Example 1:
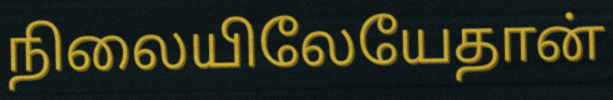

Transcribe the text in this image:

நிலையிலேயேதான்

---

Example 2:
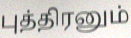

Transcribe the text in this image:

புத்திரனும்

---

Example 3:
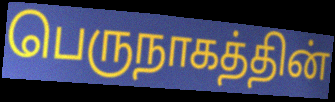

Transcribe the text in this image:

பெருநாகத்தின்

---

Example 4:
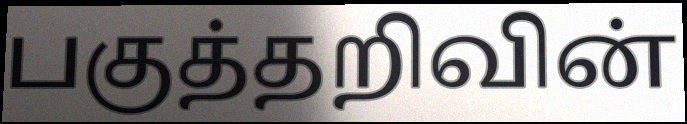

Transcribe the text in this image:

பகுத்தறிவின்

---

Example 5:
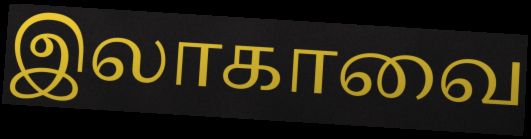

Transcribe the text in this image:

இலாகாவை